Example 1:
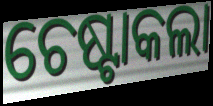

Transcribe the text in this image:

ଚେଷ୍ଟାକଲା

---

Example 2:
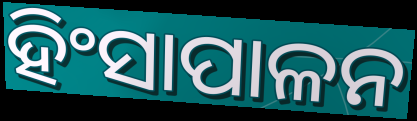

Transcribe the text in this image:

ହିଂସାପାଳନ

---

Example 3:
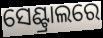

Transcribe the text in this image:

ସେଣ୍ଟ୍ରାଲରେ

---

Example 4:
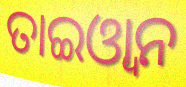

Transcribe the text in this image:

ତାଇଓ୍ୱାନ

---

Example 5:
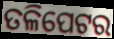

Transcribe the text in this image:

ତଳିପେଟର